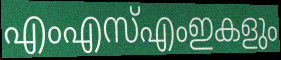
എംഎസ്എംഇകളും